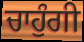
ਚਾਹੁੰਗੀ